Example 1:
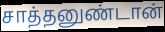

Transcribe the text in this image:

சாத்தனுண்டான்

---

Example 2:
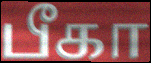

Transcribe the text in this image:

பீகா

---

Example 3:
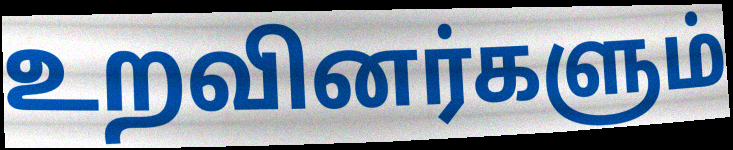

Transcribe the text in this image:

உறவினர்களும்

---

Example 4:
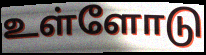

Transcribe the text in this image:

உள்ளோடு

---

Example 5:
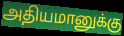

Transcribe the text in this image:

அதியமானுக்கு